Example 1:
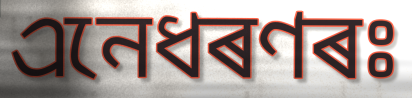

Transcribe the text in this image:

এনেধৰণৰঃ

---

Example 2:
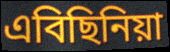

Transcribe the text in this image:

এবিছিনিয়া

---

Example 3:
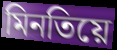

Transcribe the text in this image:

মিনতিয়ে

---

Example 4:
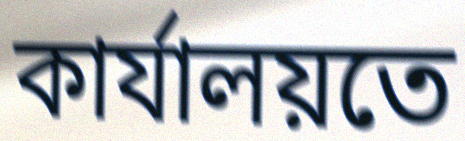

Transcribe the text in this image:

কাৰ্যালয়তে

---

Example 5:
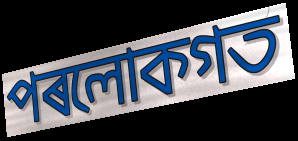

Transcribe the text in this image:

পৰলোকগত